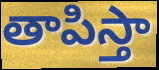
తాపిస్తా